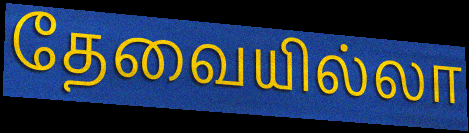
தேவையில்லா